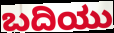
ಬದಿಯು